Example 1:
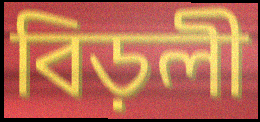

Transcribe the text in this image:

বিড়লী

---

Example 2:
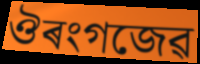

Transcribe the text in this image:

ঔৰংগজেৱ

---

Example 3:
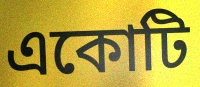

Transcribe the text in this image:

একোটি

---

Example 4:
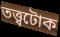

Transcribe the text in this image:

তত্ত্বটোক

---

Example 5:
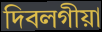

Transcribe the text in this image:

দিবলগীয়া